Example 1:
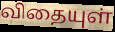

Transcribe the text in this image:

விதையுள்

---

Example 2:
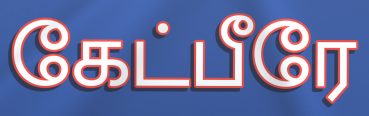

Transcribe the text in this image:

கேட்பீரே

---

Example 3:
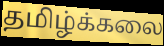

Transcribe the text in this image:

தமிழ்க்கலை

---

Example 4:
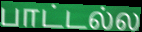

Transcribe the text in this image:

பாட்டல்ல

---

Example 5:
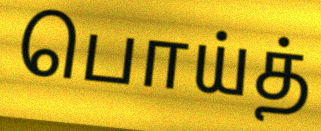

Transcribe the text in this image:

பொய்த்